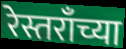
रेस्तराँच्या